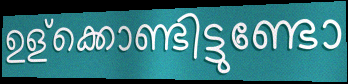
ഉള്ക്കൊണ്ടിട്ടുണ്ടോ